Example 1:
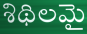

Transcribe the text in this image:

శిథిలమై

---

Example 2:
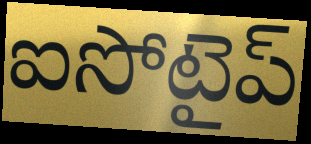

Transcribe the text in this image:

ఐసోటైప్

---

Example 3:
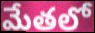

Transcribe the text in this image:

మేతలో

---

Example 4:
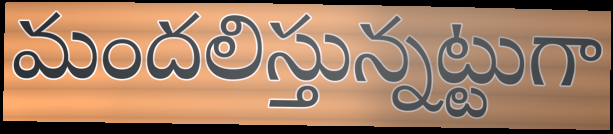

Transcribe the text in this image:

మందలిస్తున్నట్టుగా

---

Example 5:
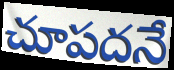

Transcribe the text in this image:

చూపదనే